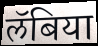
लॅबिया